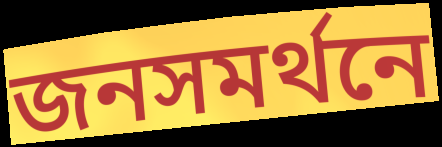
জনসমর্থনে